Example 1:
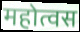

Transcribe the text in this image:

महोत्वस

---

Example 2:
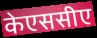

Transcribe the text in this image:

केएससीए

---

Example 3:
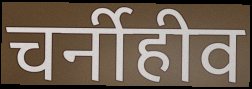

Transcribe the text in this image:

चर्नीहीव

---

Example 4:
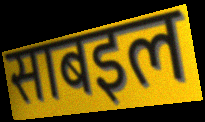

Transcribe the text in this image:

साबइल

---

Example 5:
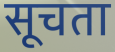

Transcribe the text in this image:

सूचता